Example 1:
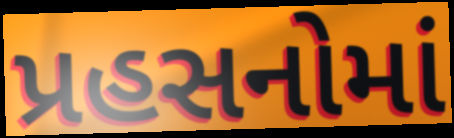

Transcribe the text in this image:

પ્રહસનોમાં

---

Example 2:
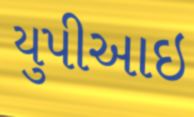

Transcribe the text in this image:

યુપીઆઇ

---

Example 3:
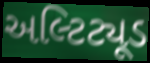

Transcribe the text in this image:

અલ્ટિટ્યૂડ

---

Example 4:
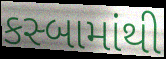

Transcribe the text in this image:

કસ્બામાંથી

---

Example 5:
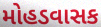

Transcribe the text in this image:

મોહડવાસક